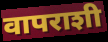
वापराशी